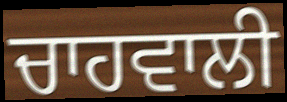
ਚਾਹਵਾਲੀ